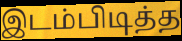
இடம்பிடித்த